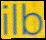
ilb